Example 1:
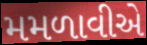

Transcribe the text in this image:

મમળાવીએ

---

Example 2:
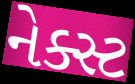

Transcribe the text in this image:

નેક્સ્ટ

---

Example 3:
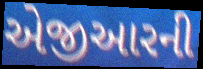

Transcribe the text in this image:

એજીઆરની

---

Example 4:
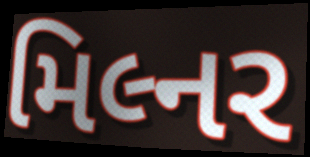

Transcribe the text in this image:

મિલ્નર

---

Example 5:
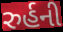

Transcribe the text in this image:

રુર્હની